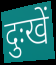
दुःखें